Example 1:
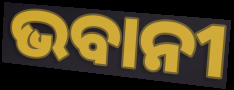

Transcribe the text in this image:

ଭବାନୀ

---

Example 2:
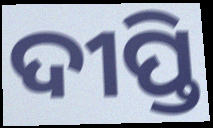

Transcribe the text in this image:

ଦୀପ୍ତି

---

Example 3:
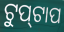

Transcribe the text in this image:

ଟୁପ୍‌ଟାପ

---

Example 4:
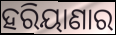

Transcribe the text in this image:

ହରିୟାଣାର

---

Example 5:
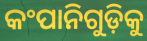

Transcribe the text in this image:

କଂପାନିଗୁଡ଼ିକୁ